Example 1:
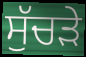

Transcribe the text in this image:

ਸੁੱਚੜੇ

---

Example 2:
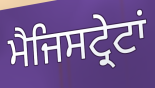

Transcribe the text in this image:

ਮੈਜਿਸਟ੍ਰੇਟਾਂ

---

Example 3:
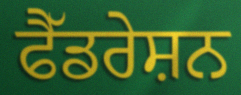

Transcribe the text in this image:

ਫੈੱਡਰੇਸ਼ਨ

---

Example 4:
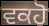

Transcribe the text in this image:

ਵਕਹੋ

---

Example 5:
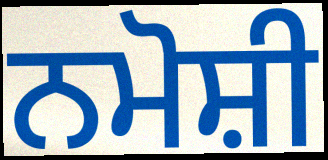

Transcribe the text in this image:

ਨਮੋਸ਼ੀ